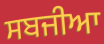
ਸਬਜੀਆ